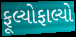
ફૂલ્યોફાલ્યો